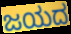
ಜಯದ